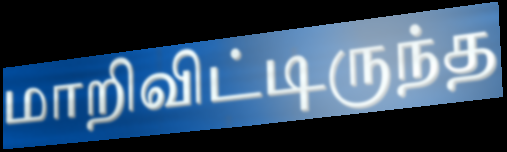
மாறிவிட்டிருந்த